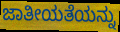
ಜಾತೀಯತೆಯನ್ನು